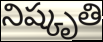
నిష్కృతి